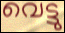
വെട്ടു